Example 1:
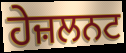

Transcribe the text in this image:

ਹੇਜ਼ਲਨਟ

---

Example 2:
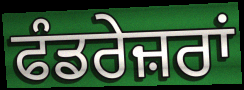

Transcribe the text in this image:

ਫੰਡਰੇਜ਼ਰਾਂ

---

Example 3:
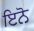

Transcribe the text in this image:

ਇਨੋ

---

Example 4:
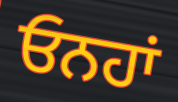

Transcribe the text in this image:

ਓਨਹਾਂ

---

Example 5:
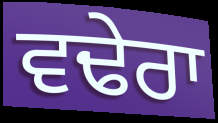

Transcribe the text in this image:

ਵਢੇਰਾ